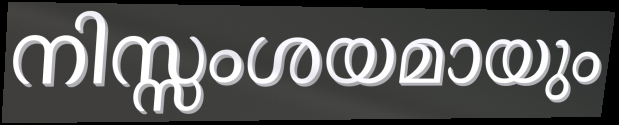
നിസ്സംശയമായും